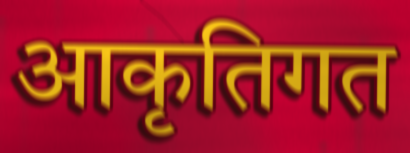
आकृतिगत